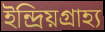
ইন্দ্রিয়গ্রাহ্য